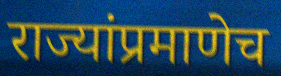
राज्यांप्रमाणेच